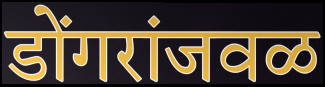
डोंगरांजवळ